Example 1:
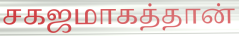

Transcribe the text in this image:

சகஜமாகத்தான்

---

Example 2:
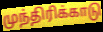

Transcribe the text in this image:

முந்திரிக்காடு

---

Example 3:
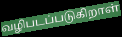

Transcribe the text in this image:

வழிபடப்படுகிறாள்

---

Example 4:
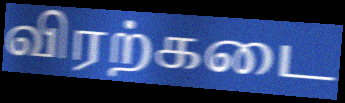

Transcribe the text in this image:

விரற்கடை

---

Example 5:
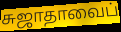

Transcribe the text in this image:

சுஜாதாவைப்